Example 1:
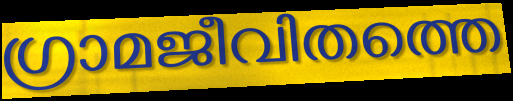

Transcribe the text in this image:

ഗ്രാമജീവിതത്തെ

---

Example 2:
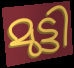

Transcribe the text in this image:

മുട്ടി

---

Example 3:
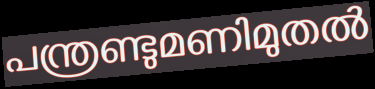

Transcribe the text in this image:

പന്ത്രണ്ടുമണിമുതൽ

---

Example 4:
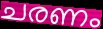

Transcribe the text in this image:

ചരണം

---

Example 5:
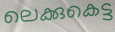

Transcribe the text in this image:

ലെക്കുകെട്ട